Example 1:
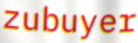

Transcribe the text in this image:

zubuyer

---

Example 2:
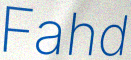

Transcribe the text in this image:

Fahd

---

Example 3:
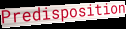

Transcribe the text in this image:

Predisposition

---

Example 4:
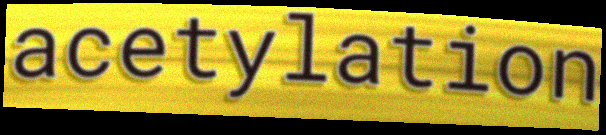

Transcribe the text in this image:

acetylation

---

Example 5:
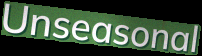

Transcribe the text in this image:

Unseasonal